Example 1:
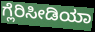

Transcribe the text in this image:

ಗ್ಲೆರಿಸೀಡಿಯಾ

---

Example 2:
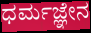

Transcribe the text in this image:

ಧರ್ಮಜ್ಞೇನ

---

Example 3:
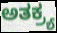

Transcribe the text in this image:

ಅತಕ್ರ್ಯ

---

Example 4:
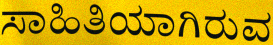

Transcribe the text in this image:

ಸಾಹಿತಿಯಾಗಿರುವ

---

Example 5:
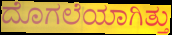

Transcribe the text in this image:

ದೊಗಲೆಯಾಗಿತ್ತು